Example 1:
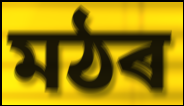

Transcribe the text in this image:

মঠৰ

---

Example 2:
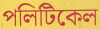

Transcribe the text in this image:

পলিটিকেল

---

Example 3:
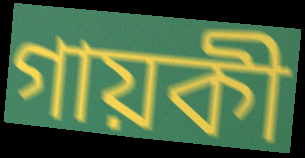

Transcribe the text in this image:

গায়কী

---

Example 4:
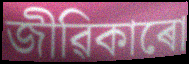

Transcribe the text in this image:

জীৱিকাৰো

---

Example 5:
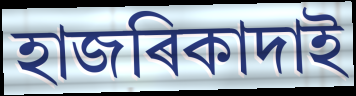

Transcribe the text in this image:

হাজৰিকাদাই